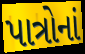
પાત્રોનાં